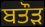
ਬਤੌੜ